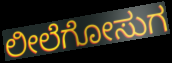
ಲೀಲೆಗೋಸುಗ